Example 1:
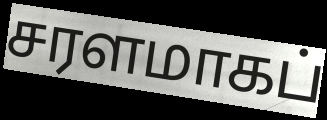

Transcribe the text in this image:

சரளமாகப்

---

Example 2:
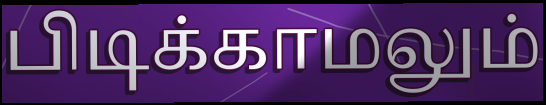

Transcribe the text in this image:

பிடிக்காமலும்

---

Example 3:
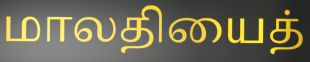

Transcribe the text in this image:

மாலதியைத்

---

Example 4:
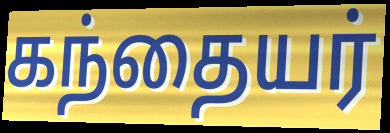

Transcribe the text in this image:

கந்தையர்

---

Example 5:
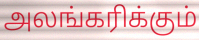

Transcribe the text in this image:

அலங்கரிக்கும்